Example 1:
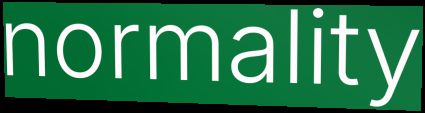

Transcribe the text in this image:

normality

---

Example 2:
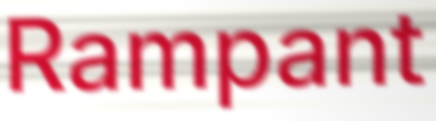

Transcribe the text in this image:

Rampant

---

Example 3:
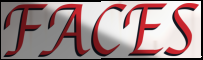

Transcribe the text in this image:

FACES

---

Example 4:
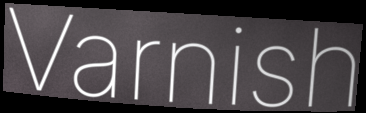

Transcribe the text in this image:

Varnish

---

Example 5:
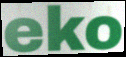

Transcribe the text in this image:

eko